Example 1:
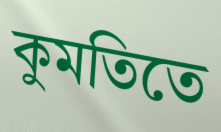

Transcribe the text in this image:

কুমতিতে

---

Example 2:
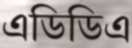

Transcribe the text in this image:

এডিডিএ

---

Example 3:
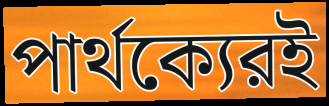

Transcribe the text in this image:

পার্থক্যেরই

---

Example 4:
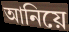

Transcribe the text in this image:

আনিয়ে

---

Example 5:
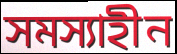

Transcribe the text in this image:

সমস্যাহীন